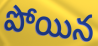
పోయిన